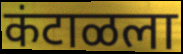
कंटाळला